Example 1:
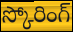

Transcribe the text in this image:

స్కోరింగ్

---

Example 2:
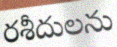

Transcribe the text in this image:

రశీదులను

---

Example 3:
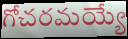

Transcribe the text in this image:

గోచరమయ్యే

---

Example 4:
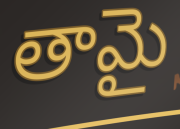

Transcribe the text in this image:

తామై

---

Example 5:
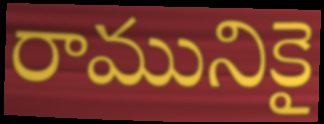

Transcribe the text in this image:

రామునికై